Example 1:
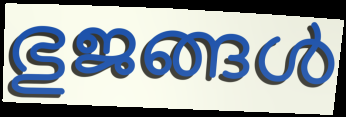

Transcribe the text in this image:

ഭുജങ്ങൾ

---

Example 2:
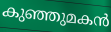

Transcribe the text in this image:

കുഞ്ഞുമകൻ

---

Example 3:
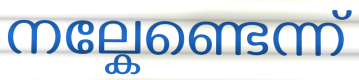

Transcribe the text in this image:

നല്കേണ്ടെന്ന്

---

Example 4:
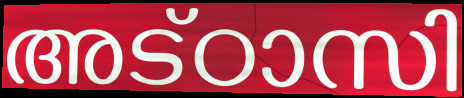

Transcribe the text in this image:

അട്ഠാസി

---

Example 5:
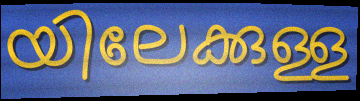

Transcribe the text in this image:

യിലേക്കുള്ള